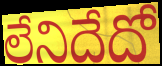
లేనిదేదో